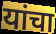
यांचा